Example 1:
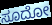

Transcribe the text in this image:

ಸೂದೋ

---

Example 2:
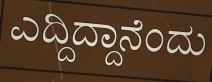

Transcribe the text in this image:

ಎದ್ದಿದ್ದಾನೆಂದು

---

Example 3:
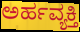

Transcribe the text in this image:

ಅರ್ಹವ್ಯಕ್ತಿ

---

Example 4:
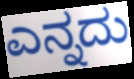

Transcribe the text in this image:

ಎನ್ನದು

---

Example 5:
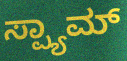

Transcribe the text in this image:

ಸ್ಪ್ಯಾಮ್